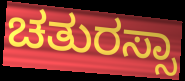
ಚತುರಸ್ಸಾ